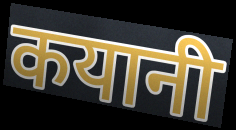
कयानी